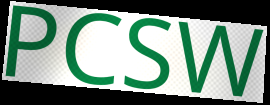
PCSW